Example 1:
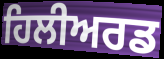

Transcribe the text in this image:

ਹਿਲੀਅਰਡ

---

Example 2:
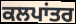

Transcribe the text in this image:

ਕਲਪਾਂਤਰ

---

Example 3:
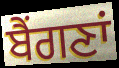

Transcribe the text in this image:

ਬੈਂਗਣਾਂ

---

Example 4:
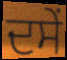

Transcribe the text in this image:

ਦਸੇਂ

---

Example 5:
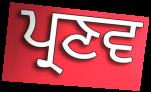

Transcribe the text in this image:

ਪ੍ਰਣਵ